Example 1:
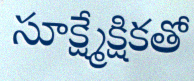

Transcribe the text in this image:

సూక్ష్మేక్షికతో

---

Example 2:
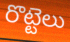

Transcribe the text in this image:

రొట్టెలు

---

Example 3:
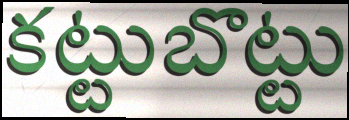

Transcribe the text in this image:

కట్టుబొట్టు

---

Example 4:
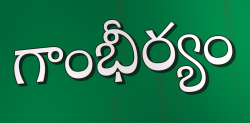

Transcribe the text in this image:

గాంభీర్యం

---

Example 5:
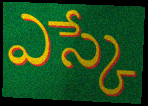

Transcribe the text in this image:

ఎస్కే